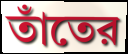
তাঁতের